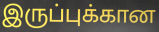
இருப்புக்கான